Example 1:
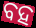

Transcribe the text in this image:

ବହ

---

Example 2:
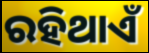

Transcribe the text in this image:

ରହିଥାଏଁ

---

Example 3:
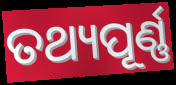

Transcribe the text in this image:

ତଥ୍ୟପୂର୍ଣ୍ଣ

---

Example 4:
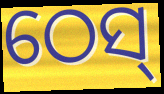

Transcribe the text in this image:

ଠେସ୍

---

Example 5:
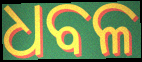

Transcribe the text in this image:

ଧବଳ